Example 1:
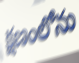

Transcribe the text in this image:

క్షణంలోను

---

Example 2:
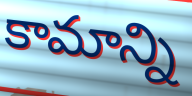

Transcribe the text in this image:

కామాన్ని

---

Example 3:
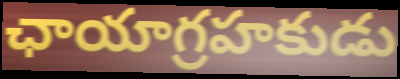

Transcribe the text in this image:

ఛాయాగ్రహకుడు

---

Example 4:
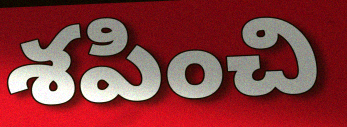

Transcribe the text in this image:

శపించి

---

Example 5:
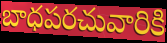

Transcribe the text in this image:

బాధపరచువారికి